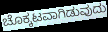
ಚೊಕ್ಕಟವಾಗಿಡುವುದು